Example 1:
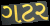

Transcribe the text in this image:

ગટર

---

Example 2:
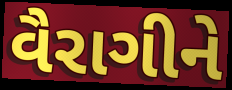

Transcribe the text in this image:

વૈરાગીને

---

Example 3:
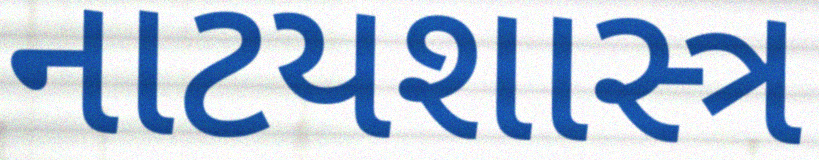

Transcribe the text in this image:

નાટયશાસ્ત્ર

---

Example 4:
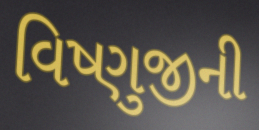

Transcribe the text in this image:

વિષ્ણુજીની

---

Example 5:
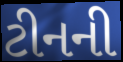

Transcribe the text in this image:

ટીનની